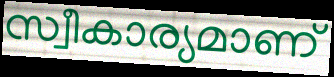
സ്വീകാര്യമാണ്